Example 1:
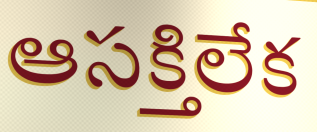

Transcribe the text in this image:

ఆసక్తిలేక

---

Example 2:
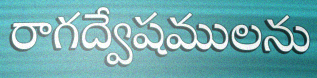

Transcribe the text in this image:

రాగద్వేషములను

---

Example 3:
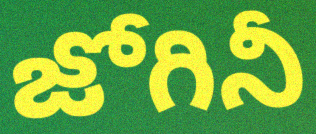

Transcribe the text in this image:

జోగినీ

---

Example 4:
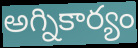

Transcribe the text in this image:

అగ్నికార్యం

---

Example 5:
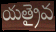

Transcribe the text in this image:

యత్రైవ